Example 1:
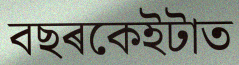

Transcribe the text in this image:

বছৰকেইটাত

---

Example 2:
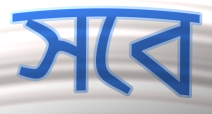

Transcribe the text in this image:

সবে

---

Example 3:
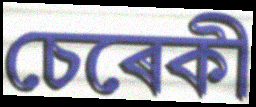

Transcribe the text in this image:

চেৰেকী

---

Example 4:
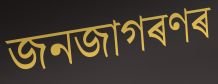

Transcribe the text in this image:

জনজাগৰণৰ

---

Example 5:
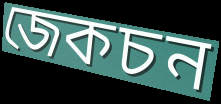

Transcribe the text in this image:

জেকচন